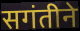
सगंतीने